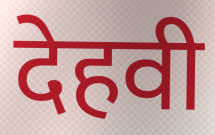
देहवी